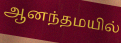
ஆனந்தமயில்